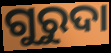
ଗୁରୁଦା